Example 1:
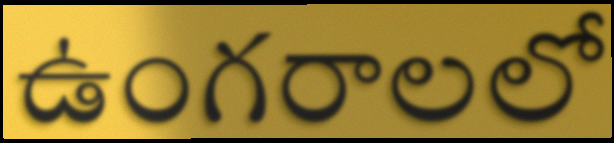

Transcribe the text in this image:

ఉంగరాలలో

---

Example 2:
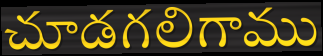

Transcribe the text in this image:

చూడగలిగాము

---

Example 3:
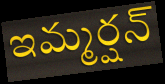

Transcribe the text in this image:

ఇమ్మర్షన్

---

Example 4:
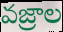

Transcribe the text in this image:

వజ్రాల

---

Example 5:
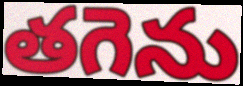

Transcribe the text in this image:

తగెను